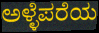
ಅಳ್ಳೆಪರೆಯ